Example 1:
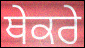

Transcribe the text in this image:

ਥੇਕਰੇ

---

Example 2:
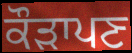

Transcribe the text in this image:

ਕੌੜਾਪਣ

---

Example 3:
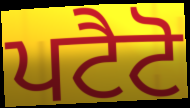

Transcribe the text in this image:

ਪਟੈਟੋ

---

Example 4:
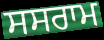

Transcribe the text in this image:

ਸਸਰਾਮ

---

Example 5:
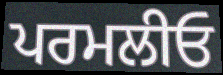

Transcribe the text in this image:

ਪਰਮਲੀਓ